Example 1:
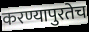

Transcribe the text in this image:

करण्यापुरतेच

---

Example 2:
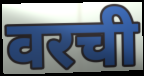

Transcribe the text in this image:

वरची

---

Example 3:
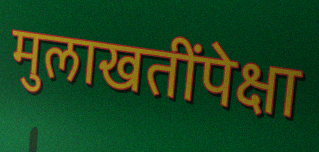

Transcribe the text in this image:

मुलाखतींपेक्षा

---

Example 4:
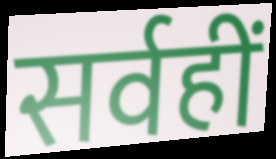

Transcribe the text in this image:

सर्वहीं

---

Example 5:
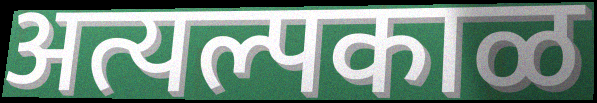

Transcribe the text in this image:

अत्यल्पकाळ